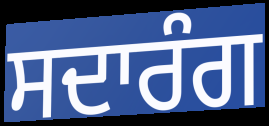
ਸਦਾਰੰਗ